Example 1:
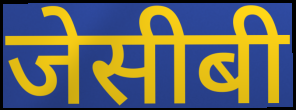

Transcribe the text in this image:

जेसीबी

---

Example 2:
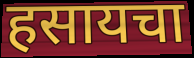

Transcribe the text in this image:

हसायचा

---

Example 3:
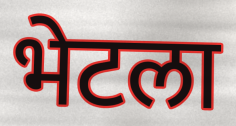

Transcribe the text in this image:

भेटला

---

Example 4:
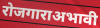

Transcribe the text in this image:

रोजगाराअभावी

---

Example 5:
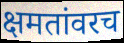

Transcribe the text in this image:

क्षमतांवरच